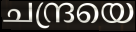
ചന്ദ്രയെ